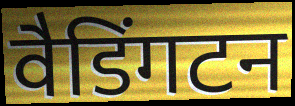
वैडिंगटन